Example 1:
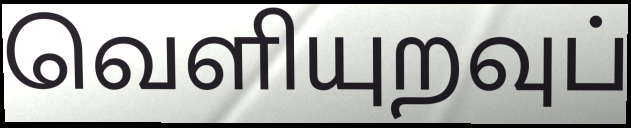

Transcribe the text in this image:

வெளியுறவுப்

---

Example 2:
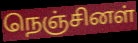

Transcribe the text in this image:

நெஞ்சினள்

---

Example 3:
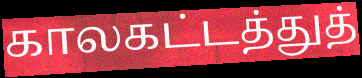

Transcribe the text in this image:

காலகட்டத்துத்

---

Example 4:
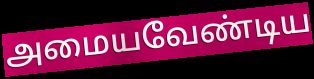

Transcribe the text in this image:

அமையவேண்டிய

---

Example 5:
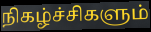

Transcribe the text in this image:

நிகழ்ச்சிகளும்